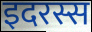
इदरस्स